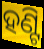
ହଣ୍ଟି